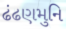
ઢંઢણમુનિ